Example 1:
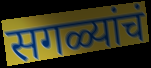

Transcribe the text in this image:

सगळ्यांचं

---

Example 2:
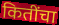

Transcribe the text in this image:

कितींचा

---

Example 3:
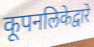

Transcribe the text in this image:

कूपनलिकेद्वारे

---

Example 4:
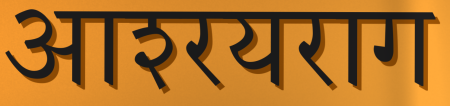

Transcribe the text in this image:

आश्रयराग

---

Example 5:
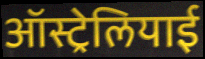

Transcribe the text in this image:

ऑस्ट्रेलियाई